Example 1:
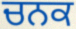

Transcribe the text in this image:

ਚਨਕ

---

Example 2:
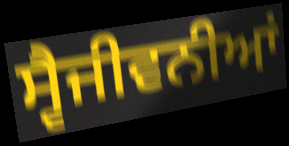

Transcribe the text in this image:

ਸ੍ਵੈਜੀਵਨੀਆਂ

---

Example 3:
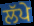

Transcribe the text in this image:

ਲੱਪੇ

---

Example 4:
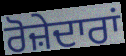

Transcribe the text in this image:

ਰੋਜ਼ੇਦਾਰਾਂ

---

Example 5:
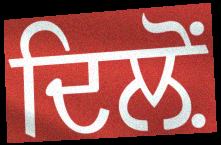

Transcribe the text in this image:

ਦਿਲ਼ੋਂ